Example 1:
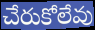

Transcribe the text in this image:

చేరుకోలేవు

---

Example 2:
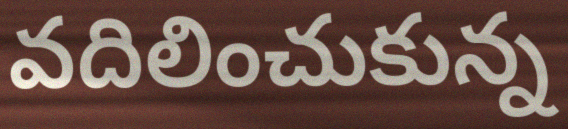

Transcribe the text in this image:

వదిలించుకున్న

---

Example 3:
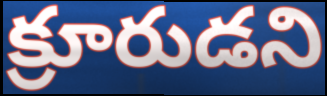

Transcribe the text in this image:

క్రూరుడని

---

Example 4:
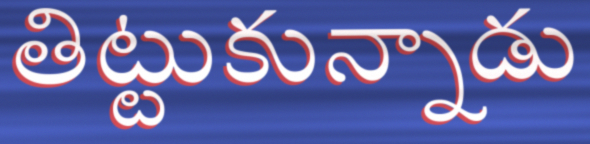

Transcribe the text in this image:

తిట్టుకున్నాడు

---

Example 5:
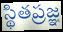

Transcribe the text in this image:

స్థితప్రజ్ఞ